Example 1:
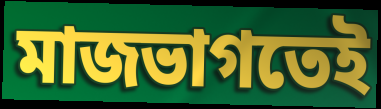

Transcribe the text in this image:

মাজভাগতেই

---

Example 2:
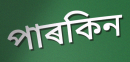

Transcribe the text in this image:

পাৰকিন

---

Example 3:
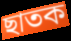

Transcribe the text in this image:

ছাতক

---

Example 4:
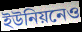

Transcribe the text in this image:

ইউনিয়নেও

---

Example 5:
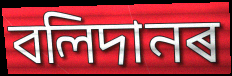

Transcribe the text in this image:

বলিদানৰ